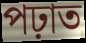
পঢ়াত